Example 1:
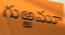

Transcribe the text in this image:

గుఱ్ఱమూ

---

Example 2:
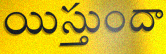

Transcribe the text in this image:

యిస్తుందా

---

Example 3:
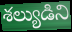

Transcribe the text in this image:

శల్యుడిని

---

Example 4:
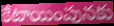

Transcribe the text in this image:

కేటాయింపునకు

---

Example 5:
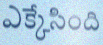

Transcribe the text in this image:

ఎక్కేసింది